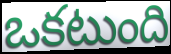
ఒకటుంది